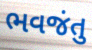
ભવજંતુ